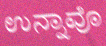
ಉನ್ನಾವೊ